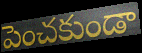
పెంచకుండా